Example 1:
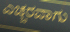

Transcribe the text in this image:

ಎಚ್ಚರವಾಗು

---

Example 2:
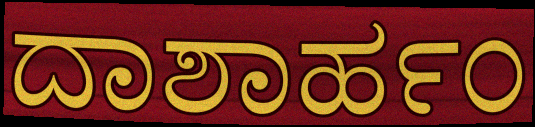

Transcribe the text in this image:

ದಾಶಾರ್ಹಂ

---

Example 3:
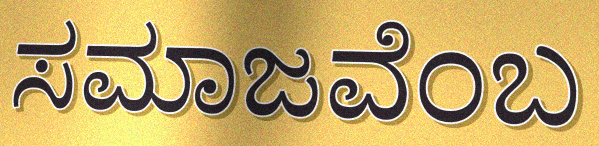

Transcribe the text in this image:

ಸಮಾಜವೆಂಬ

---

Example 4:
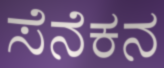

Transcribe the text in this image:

ಸೆನೆಕನ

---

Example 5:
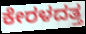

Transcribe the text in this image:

ಕೇರಳದತ್ತ